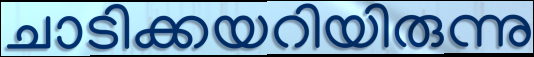
ചാടിക്കയറിയിരുന്നു